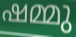
ഷമ്മു